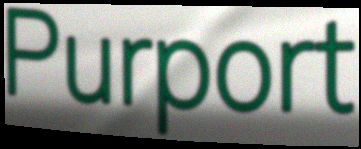
Purport